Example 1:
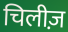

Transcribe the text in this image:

चिलीज़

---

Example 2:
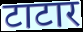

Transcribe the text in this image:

टाटार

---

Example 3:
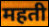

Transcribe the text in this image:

महती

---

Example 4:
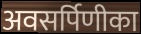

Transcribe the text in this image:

अवसर्पिणीका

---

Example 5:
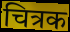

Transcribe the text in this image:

चित्रक